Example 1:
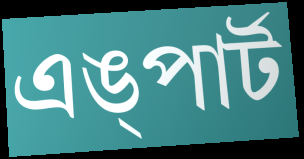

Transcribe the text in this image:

এঙ্পার্ট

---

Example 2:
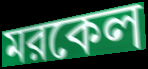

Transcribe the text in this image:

মরকেল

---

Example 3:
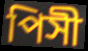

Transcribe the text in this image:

পিসী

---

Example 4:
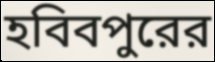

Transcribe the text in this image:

হবিবপুরের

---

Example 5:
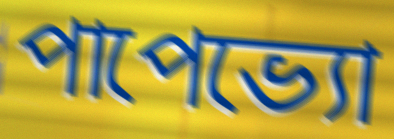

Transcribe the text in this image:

পাপেভ্যো